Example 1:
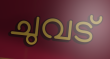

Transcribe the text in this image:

ചുവട്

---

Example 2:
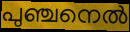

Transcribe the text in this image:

പുഞ്ചനെൽ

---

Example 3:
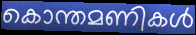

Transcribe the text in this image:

കൊന്തമണികൾ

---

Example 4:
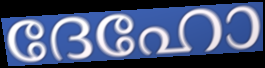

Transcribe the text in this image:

ദേഹോ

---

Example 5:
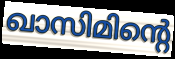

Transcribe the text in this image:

ഖാസിമിന്റെ